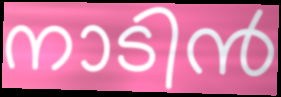
നാടിൻ